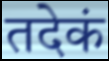
तदेकं